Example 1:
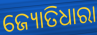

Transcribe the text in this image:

ଜ୍ଯୋତିଧାରା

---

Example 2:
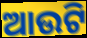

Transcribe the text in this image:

ଆଉଟି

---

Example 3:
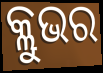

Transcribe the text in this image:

କ୍ଲୁଭର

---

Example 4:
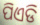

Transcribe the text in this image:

ପିଏଡି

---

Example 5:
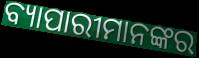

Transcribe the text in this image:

ବ୍ୟାପାରୀମାନଙ୍କର